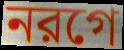
নরগে